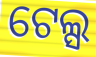
ଟେଲ୍ସ